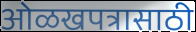
ओळखपत्रासाठी